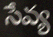
సేవ్య